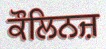
ਕੌਲਿਨਜ਼